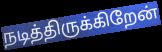
நடித்திருக்கிறேன்